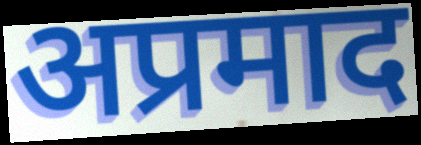
अप्रमाद